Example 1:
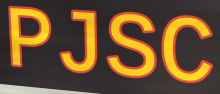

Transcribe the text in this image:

PJSC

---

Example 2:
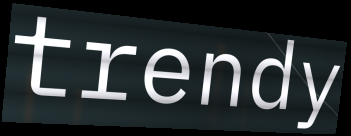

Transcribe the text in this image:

trendy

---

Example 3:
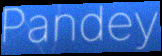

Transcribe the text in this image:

Pandey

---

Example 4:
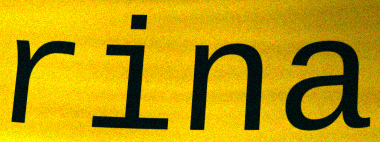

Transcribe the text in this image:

rina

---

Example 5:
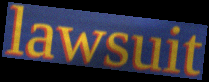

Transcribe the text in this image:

lawsuit